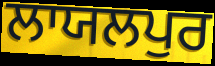
ਲਾਯਲਪੁਰ